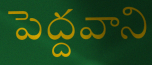
పెద్దవాని